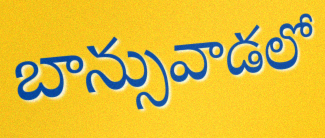
బాన్సువాడలో